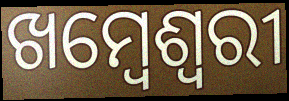
ଖମ୍ବେଶ୍ଵରୀ